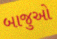
બાજુઓ